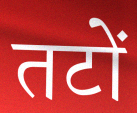
तटों